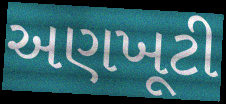
અણખૂટી